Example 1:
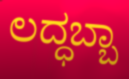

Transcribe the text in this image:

ಲದ್ಧಬ್ಬಾ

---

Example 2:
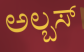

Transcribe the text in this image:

ಅಲ್ಬಸ್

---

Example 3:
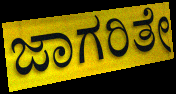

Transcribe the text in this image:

ಜಾಗರಿತೇ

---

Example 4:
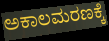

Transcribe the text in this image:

ಅಕಾಲಮರಣಕ್ಕೆ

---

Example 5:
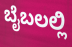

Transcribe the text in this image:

ಬೈಬಲಲ್ಲಿ